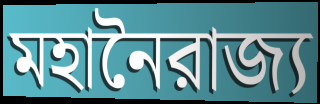
মহানৈরাজ্য